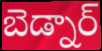
బెడ్నార్